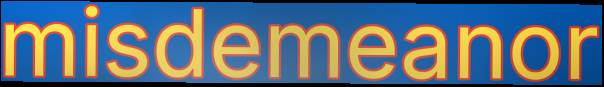
misdemeanor